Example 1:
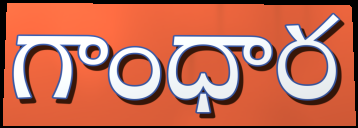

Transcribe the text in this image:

గాంధార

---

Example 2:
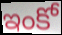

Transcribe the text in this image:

ఇంకో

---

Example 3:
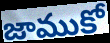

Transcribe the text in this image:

జాముకో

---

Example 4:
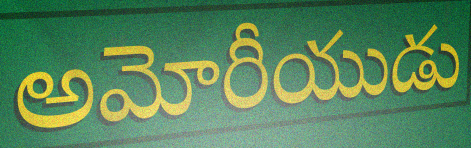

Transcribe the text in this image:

అమోరీయుడు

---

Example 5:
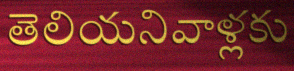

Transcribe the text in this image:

తెలియనివాళ్లకు